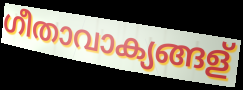
ഗീതാവാക്യങ്ങള്